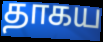
தாகய